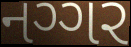
નગ્ગર